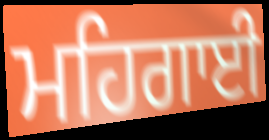
ਮਹਿਗਾਈ